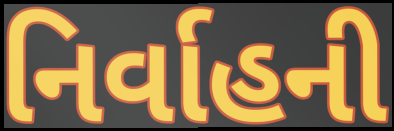
નિર્વાહની